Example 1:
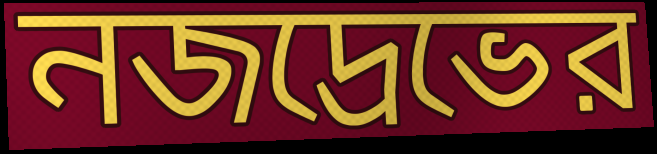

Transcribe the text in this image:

নজদ্রেভের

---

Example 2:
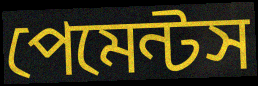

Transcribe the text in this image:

পেমেন্টস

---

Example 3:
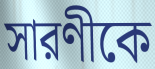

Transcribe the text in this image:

সারণীকে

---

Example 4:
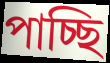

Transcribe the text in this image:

পাচ্ছি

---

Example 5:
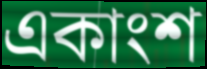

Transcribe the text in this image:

একাংশ